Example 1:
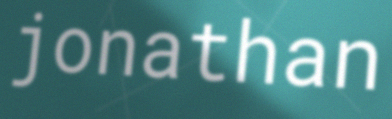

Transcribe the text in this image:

jonathan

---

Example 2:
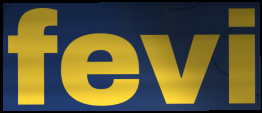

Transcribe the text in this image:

fevi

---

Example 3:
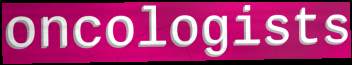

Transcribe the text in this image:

oncologists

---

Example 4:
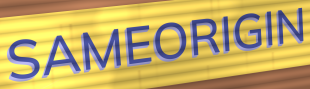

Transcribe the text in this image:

SAMEORIGIN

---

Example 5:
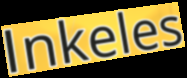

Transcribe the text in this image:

Inkeles